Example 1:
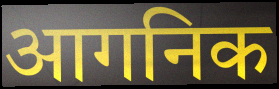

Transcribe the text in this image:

आगनिक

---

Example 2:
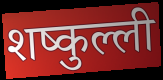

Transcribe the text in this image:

शष्कुल्ली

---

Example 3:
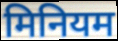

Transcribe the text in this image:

मिनियम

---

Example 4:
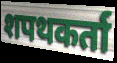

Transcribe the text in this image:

शपथकर्ता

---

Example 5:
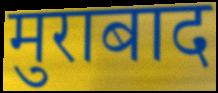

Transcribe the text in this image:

मुराबाद